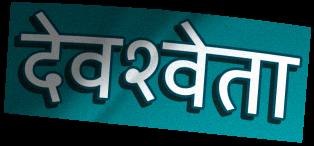
देवश्वेता